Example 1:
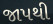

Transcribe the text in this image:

જાપથી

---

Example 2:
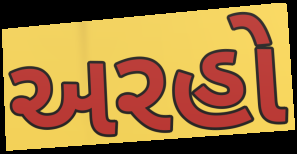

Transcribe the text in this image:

અરહો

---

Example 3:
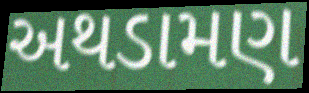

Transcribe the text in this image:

અથડામણ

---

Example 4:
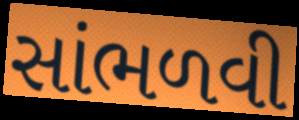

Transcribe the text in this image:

સાંભળવી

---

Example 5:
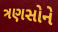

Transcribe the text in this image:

ત્રણસોને